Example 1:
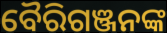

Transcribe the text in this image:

ବୈରିଗଞ୍ଜନଙ୍କ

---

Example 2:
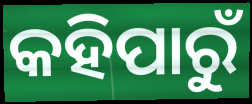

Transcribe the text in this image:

କହିପାରୁଁ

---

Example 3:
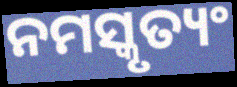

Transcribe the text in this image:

ନମସ୍କୃତ୍ୟଂ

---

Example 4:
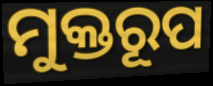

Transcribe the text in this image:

ମୁକ୍ତରୂପ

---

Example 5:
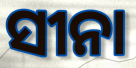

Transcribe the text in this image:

ସୀନା